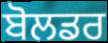
ਬੋਲਡਰ